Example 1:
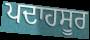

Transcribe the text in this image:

ਪਦਾਹਸੂਰ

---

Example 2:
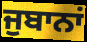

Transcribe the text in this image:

ਜੁਬਾਨਾਂ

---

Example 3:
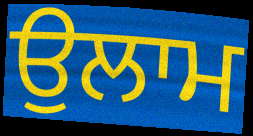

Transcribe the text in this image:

ਉਲਾਮ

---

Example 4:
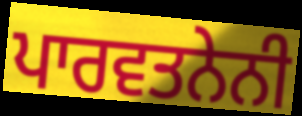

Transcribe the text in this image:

ਪਾਰਵਤਨੇਨੀ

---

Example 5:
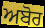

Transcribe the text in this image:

ਅਬੋਰ